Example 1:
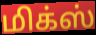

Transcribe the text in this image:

மிக்ஸ்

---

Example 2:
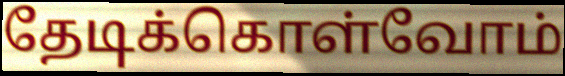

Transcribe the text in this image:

தேடிக்கொள்வோம்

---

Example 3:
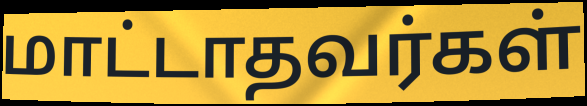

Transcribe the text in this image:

மாட்டாதவர்கள்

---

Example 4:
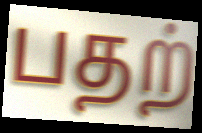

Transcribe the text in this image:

பதற்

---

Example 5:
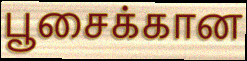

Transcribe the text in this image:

பூசைக்கான